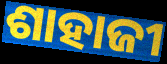
ଶାହାଜୀ